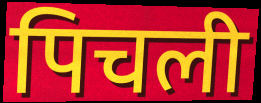
पिचली